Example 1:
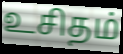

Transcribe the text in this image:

உசிதம்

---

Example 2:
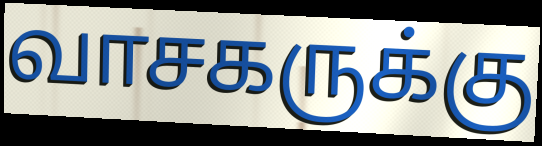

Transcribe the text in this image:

வாசகருக்கு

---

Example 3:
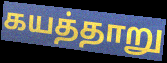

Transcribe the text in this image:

கயத்தாறு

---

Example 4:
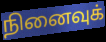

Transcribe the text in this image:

நினைவுக்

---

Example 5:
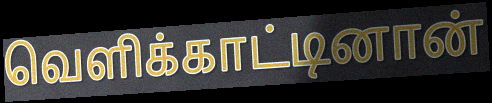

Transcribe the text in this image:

வெளிக்காட்டினான்